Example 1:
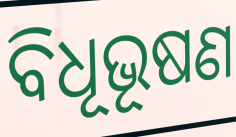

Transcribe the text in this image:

ବିଧୂଭୂଷଣ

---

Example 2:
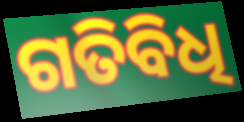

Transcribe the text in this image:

ଗତିବିଧି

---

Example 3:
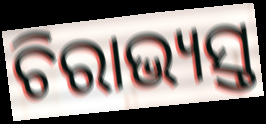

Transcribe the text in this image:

ଚିରାଭ୍ୟସ୍ତ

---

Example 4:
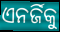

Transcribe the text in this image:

ଏନର୍ଜିକୁ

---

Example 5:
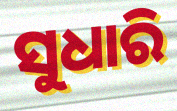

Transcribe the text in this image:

ସୁଧାରି